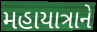
મહાયાત્રાને